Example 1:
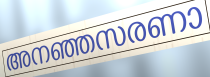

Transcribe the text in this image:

അനഞ്ഞസരണാ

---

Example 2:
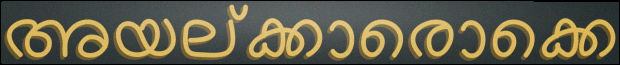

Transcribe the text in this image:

അയല്ക്കാരൊക്കെ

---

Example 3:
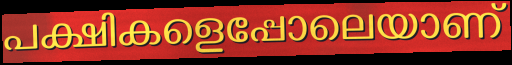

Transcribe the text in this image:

പക്ഷികളെപ്പോലെയാണ്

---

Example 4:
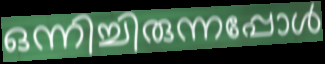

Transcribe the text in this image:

ഒന്നിച്ചിരുന്നപ്പോൾ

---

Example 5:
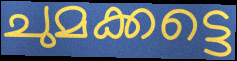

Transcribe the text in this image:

ചുമക്കട്ടെ